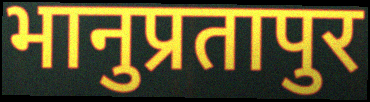
भानुप्रतापुर